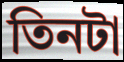
তিনটা